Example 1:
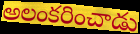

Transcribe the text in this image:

అలంకరించాడు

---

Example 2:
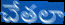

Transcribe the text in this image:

చేతలా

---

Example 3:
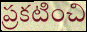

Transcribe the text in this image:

ప్రకటించి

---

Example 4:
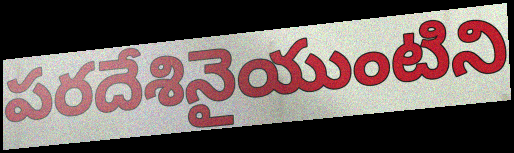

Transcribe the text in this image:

పరదేశినైయుంటిని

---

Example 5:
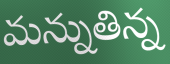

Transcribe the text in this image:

మన్నుతిన్న